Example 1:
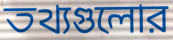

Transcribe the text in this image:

তথ্যগুলোর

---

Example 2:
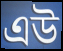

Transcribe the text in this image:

এউ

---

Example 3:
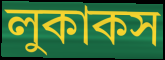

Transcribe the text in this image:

লুকাকস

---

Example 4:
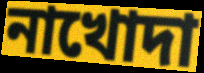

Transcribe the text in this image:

নাখোদা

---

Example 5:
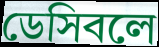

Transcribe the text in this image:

ডেসিবলে